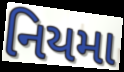
નિયમા